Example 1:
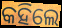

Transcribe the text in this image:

କହିଲେ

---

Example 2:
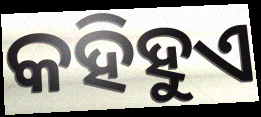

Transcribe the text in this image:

କହିହୁଏ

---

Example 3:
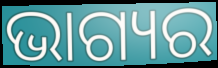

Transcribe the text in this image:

ଭାଗ୍ୟର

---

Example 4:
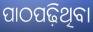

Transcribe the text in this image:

ପାଠପଢ଼ିଥିବା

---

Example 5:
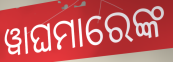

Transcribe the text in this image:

ୱାଘମାରେଙ୍କ